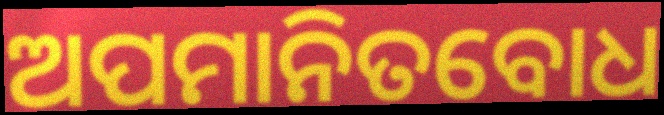
ଅପମାନିତବୋଧ